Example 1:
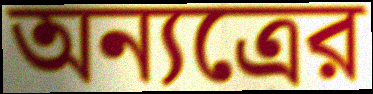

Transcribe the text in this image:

অন্যত্রের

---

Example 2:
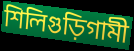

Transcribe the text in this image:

শিলিগুড়িগামী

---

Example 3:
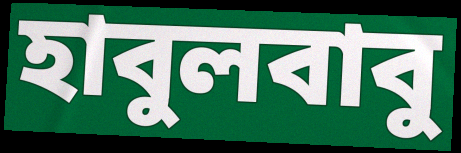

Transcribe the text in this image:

হাবুলবাবু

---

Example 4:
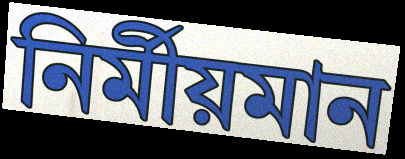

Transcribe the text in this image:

নির্মীয়মান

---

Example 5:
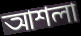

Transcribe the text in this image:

আশলা